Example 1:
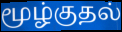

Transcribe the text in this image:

மூழ்குதல்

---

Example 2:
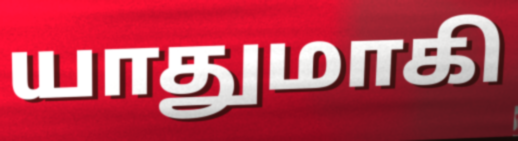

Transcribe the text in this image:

யாதுமாகி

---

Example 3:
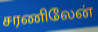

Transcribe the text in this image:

சரணிலேன்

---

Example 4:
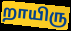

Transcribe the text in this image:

றாயிரு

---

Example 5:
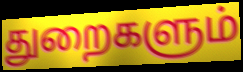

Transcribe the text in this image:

துறைகளும்